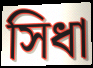
সিধা